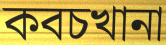
কবচখানা